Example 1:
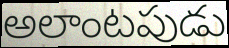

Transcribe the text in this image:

అలాంటపుడు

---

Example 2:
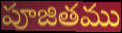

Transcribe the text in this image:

పూజితము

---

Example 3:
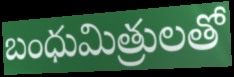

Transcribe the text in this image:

బంధుమిత్రులతో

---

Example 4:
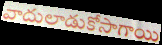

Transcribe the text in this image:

వాదులాడుకోసాగాయి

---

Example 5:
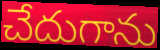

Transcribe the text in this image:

చేదుగాను